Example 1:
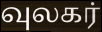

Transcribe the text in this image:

வுலகர்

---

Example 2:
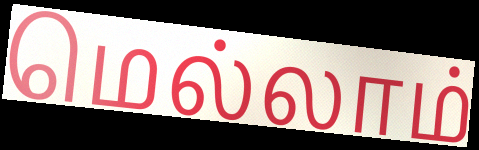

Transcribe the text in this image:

மெல்லாம்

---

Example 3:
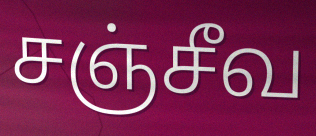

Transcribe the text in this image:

சஞ்சீவ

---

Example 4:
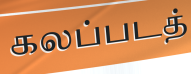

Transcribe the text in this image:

கலப்படத்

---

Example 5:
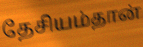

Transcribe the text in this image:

தேசியம்தான்